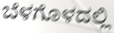
ಬೆಳಗೊಳದಲ್ಲಿ